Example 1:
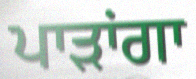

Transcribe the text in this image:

ਪਾੜਾਂਗਾ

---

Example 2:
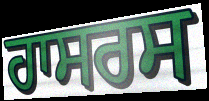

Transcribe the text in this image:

ਹਾਸਰਸ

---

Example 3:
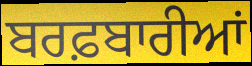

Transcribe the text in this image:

ਬਰਫ਼ਬਾਰੀਆਂ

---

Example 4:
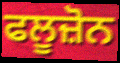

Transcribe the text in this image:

ਫਲੂਜ਼ੋਨ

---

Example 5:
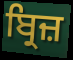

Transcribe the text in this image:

ਬ੍ਰਿਜ਼